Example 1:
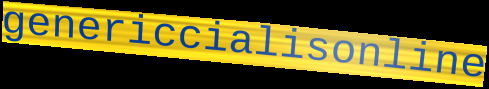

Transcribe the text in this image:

genericcialisonline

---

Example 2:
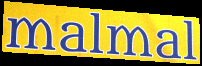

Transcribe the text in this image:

malmal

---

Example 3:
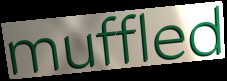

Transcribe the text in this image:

muffled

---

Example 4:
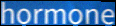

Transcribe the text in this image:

hormone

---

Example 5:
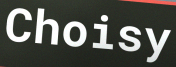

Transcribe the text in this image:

Choisy